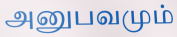
அனுபவமும்